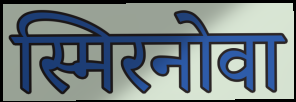
स्मिरनोवा